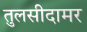
तुलसीदामर